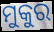
ମୁକୁର